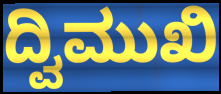
ದ್ವಿಮುಖಿ